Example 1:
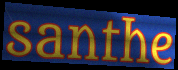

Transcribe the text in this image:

santhe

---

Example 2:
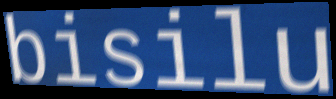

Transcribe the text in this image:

bisilu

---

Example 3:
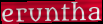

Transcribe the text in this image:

eruntha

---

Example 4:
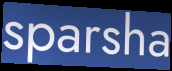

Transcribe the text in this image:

sparsha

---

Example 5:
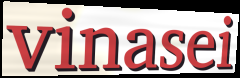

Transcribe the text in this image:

vinasei